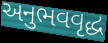
અનુભવવૃદ્ધ